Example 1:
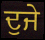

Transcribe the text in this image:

ਦੁਜੇ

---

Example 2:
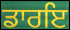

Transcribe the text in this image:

ਡਾਰਇ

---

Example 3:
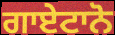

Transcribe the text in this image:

ਗਾਏਟਾਨੋ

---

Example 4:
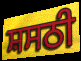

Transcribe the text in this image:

ਸ਼ਸਠੀ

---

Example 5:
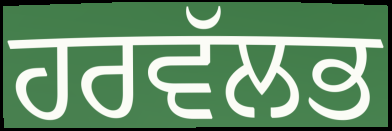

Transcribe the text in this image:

ਹਰਵੱਲਭ